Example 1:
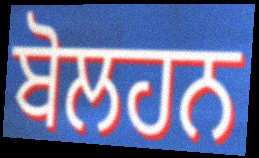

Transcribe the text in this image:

ਬੋਲਹਨ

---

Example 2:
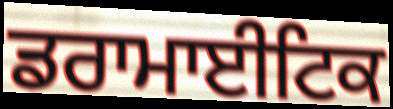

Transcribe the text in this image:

ਡਰਾਮਾਈਟਿਕ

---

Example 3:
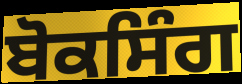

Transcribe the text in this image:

ਬੋਕਸਿੰਗ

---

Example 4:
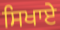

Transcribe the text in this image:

ਸਿਖਾਏੇ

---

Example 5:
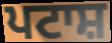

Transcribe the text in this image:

ਪਟਾਸ਼